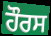
ਹੌਰਸ